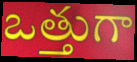
ఒత్తుగా